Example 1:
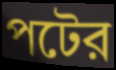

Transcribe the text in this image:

পটের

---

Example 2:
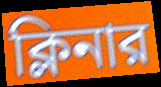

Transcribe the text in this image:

ক্লিনার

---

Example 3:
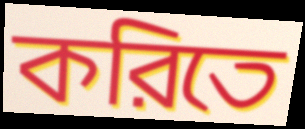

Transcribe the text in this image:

করিতে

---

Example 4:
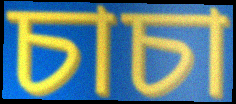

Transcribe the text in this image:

চাচা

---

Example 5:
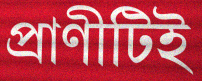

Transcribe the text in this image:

প্রাণীটিই